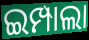
ଇମ୍ପାଲା